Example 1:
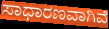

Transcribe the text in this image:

ಸಾಧಾರಣವಾಗಿವೆ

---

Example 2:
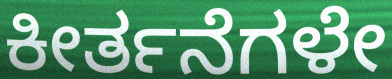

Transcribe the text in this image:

ಕೀರ್ತನೆಗಳೇ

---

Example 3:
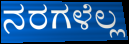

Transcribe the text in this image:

ನರಗಳೆಲ್ಲ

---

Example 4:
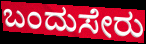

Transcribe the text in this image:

ಬಂದುಸೇರು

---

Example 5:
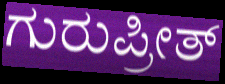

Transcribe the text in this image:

ಗುರುಪ್ರೀತ್